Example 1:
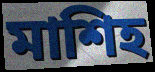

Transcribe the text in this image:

মাশিহ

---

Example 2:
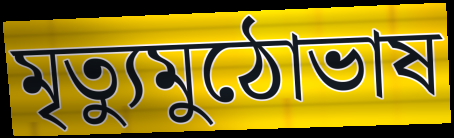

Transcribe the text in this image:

মৃত্যুমুঠোভাষ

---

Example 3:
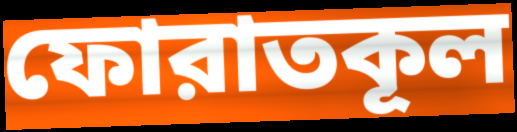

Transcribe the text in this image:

ফোরাতকূল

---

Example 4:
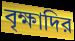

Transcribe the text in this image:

বৃক্ষাদির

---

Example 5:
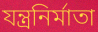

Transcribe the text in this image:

যন্ত্রনির্মাতা